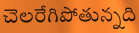
చెలరేగిపోతున్నది